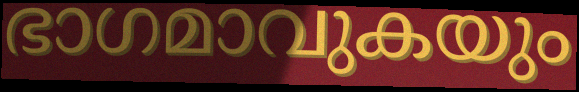
ഭാഗമാവുകയും